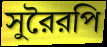
সুরৈরপি